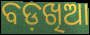
ବଡ଼ଖିଆ